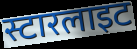
स्टारलाइट